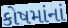
કોષમાંનાં